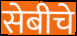
सेबीचे